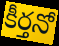
కీర్తనో